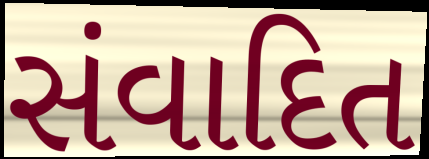
સંવાદિત